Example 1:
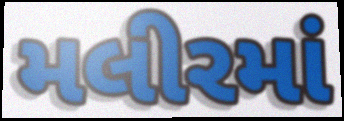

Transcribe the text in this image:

મલીરમાં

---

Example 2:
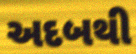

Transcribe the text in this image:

અદબથી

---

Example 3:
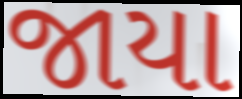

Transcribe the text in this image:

જાયા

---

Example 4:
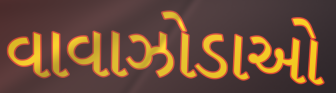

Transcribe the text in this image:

વાવાઝોડાઓ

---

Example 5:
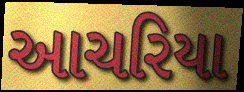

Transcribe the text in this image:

આચરિયા